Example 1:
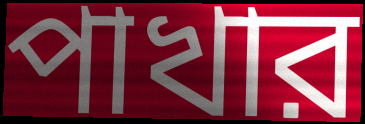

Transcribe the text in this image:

পাখার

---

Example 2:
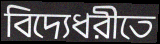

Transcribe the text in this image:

বিদ্যেধরীতে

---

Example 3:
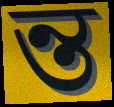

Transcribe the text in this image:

ন্ত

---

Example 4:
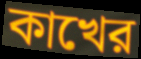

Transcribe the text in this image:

কাখের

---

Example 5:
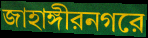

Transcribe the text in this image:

জাহাঙ্গীরনগরে